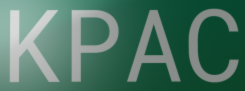
KPAC